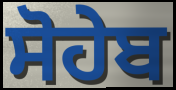
ਸੋਹੇਬ